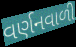
વર્ણનવાળી